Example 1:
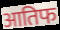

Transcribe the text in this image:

आतिफ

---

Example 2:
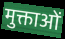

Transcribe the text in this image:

मुक्ताओं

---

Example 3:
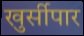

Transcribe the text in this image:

खुर्सीपार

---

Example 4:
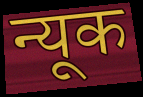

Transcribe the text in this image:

न्यूक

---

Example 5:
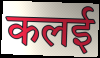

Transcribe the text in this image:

कलई